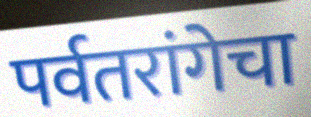
पर्वतरांगेचा